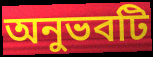
অনুভবটি